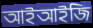
আইআইজি